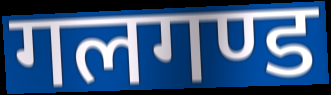
गलगण्ड